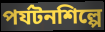
পর্যটনশিল্পে